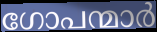
ഗോപന്മാർ